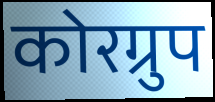
कोरग्रुप